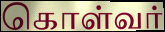
கொள்வர்